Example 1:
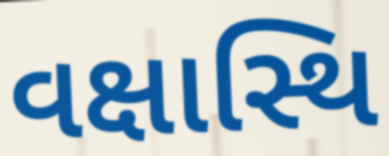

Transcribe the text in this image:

વક્ષાસ્થિ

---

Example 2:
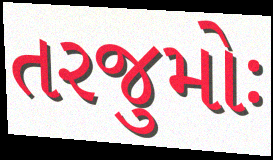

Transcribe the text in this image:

તરજુમોઃ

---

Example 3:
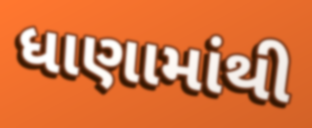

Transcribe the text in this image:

ધાણામાંથી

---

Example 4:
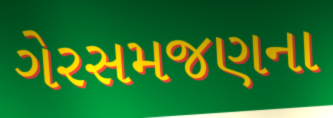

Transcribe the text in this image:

ગેરસમજણના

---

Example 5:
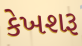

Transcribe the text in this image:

કેખશરૂ